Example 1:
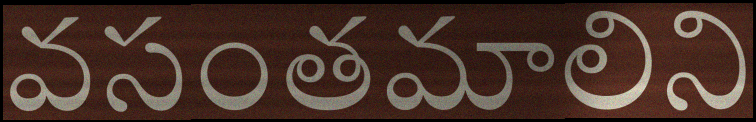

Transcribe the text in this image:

వసంతమాలిని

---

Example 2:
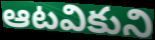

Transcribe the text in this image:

ఆటవికుని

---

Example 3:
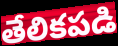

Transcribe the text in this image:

తేలికపడి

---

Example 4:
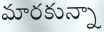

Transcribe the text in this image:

మారకున్నా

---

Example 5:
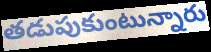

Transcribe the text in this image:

తడుపుకుంటున్నారు